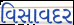
વિસાવદર